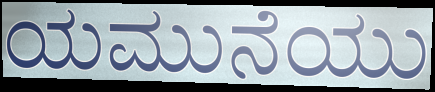
ಯಮುನೆಯು